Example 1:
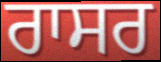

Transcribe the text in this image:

ਰਾਸਰ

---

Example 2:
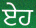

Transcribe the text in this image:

ਏਹ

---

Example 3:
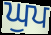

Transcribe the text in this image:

ਘੁਪ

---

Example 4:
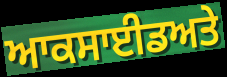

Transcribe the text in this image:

ਆਕਸਾਈਡਅਤੇ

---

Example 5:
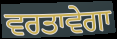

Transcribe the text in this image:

ਵਰਤਾਵੇਗਾ